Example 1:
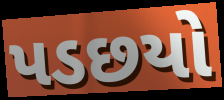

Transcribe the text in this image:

પડછયો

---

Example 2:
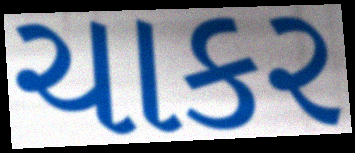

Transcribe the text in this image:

ચાકર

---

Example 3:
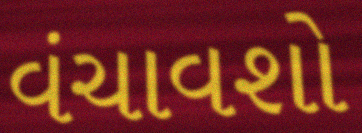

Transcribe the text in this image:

વંચાવશો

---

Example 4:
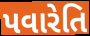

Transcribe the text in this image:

પવારેતિ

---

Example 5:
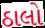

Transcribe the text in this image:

ઠાલો